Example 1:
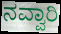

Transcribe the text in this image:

ನವ್ವಾರಿ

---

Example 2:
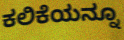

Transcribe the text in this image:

ಕಲಿಕೆಯನ್ನೂ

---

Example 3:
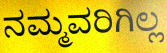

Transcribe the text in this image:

ನಮ್ಮವರಿಗಿಲ್ಲ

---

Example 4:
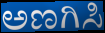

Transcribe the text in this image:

ಅಣಗಿಸಿ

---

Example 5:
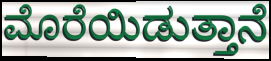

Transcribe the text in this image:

ಮೊರೆಯಿಡುತ್ತಾನೆ